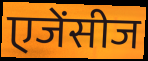
एजेंसीज